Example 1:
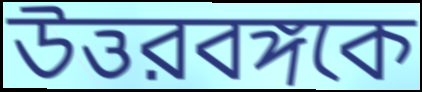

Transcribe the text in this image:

উত্তরবঙ্গকে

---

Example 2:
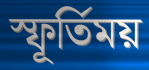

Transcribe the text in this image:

স্ফূর্তিময়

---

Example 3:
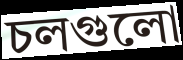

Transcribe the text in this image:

চলগুলো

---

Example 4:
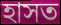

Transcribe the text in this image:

হাসত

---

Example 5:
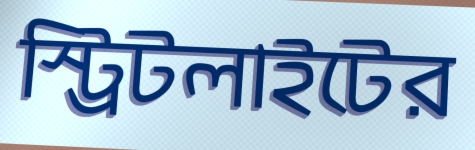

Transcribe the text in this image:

স্ট্রিটলাইটের